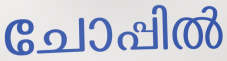
ചോപ്പിൽ